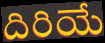
దిరియే